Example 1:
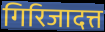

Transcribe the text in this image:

गिरिजादत्त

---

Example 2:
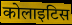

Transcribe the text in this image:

कोलाइटिस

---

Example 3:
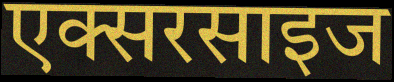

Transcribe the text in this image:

एक्सरसाइज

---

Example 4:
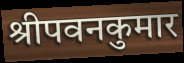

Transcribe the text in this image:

श्रीपवनकुमार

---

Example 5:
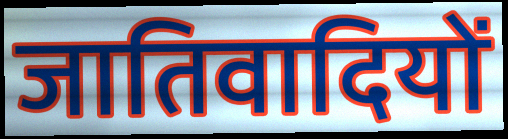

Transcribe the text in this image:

जातिवादियों